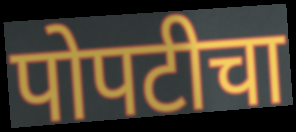
पोपटीचा